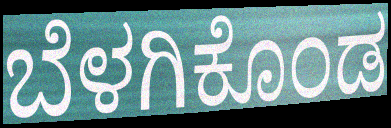
ಬೆಳಗಿಕೊಂಡ